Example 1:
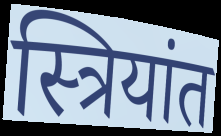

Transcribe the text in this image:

स्त्रियांत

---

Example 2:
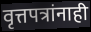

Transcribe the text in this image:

वृत्तपत्रांनाही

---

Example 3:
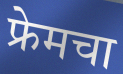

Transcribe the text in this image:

फ्रेमचा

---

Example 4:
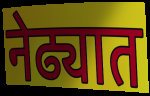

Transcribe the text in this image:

नेढ्यात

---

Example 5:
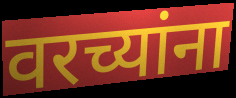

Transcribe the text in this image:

वरच्यांना